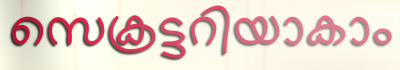
സെക്രട്ടറിയാകാം